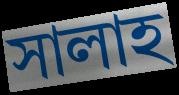
সালাহ